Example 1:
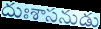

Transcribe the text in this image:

దుఃశాసనుడు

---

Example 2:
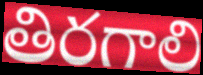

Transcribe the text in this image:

తిరగాలి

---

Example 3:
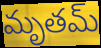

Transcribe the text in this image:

మృతమ్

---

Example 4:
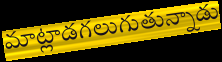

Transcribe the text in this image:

మాట్లాడగలుగుతున్నాడు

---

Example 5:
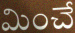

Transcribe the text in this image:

మించే